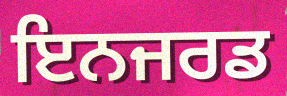
ਇਨਜਰਡ